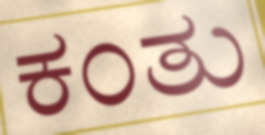
ಕಂತು